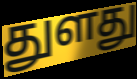
துளது